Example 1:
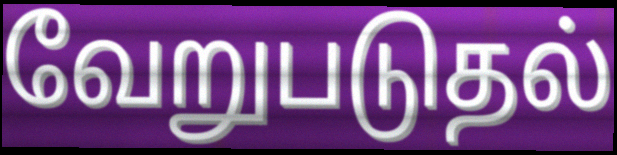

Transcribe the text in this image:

வேறுபடுதல்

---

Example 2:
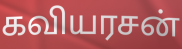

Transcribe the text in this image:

கவியரசன்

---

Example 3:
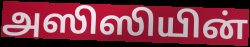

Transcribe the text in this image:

அஸிஸியின்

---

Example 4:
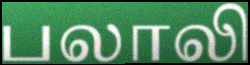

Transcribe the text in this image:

பலாலி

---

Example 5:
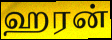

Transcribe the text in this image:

ஹரன்